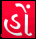
હોં